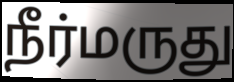
நீர்மருது